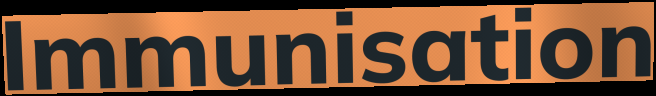
Immunisation